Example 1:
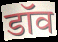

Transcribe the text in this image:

डॉव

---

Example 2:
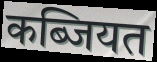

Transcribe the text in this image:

कब्जियत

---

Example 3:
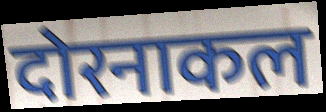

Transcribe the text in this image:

दोरनाकल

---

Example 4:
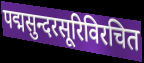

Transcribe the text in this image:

पद्मसुन्दरसूरिविरचित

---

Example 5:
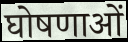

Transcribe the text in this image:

घोषणाओं